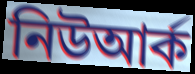
নিউআর্ক